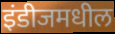
इंडीजमधील